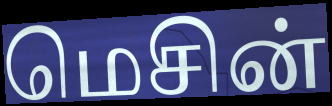
மெசின்